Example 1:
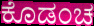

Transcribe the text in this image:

ಕೊಡಂಚ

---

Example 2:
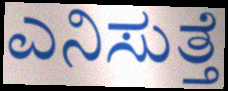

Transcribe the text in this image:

ಎನಿಸುತ್ತೆ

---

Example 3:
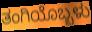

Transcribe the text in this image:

ತಂಗಿಯೊಬ್ಬಳು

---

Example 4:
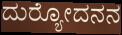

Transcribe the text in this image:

ದುರ್‍ಯೋದನನ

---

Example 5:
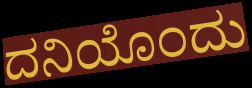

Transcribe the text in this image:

ದನಿಯೊಂದು